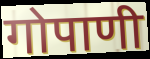
गोपाणी